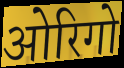
ओरिगो